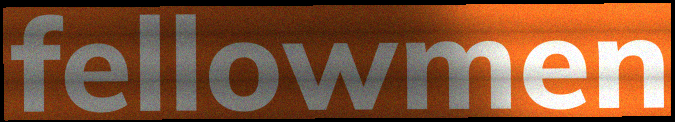
fellowmen